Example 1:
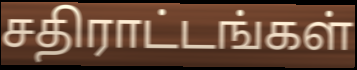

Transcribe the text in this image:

சதிராட்டங்கள்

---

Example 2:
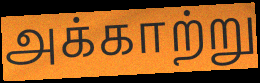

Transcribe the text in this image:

அக்காற்று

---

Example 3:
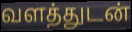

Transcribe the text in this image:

வளத்துடன்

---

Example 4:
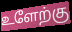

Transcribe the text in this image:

உளேற்கு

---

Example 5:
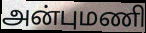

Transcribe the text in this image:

அன்புமணி